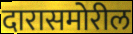
दारासमोरील